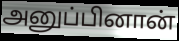
அனுப்பினான்